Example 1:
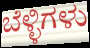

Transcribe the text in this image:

ಬೆಳ್ಳಿಗಳು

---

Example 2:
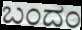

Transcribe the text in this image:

ಬಂದಂ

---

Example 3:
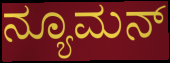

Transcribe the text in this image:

ನ್ಯೂಮನ್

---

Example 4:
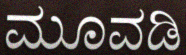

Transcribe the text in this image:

ಮೂವಡಿ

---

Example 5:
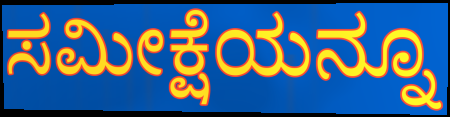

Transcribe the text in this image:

ಸಮೀಕ್ಷೆಯನ್ನೂ